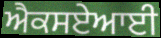
ਐਕਸਏਆਈ